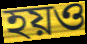
হয়ও